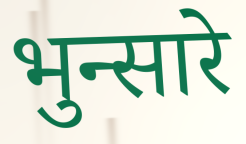
भुन्सारे